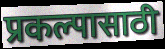
प्रकल्पासाठी